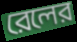
রেলের